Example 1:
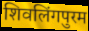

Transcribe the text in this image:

शिवलिंगपुरम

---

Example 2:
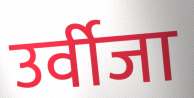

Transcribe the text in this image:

उर्वीजा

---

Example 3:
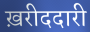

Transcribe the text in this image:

ख़रीददारी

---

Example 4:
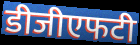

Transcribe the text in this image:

डीजीएफटी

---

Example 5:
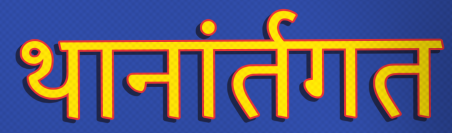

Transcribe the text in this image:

थानांर्तगत